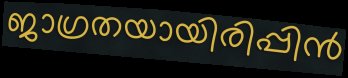
ജാഗ്രതയായിരിപ്പിൻ